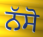
ਨੱਸੋ